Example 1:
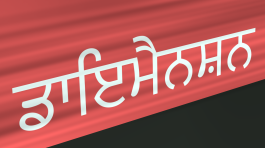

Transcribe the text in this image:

ਡਾਇਮੈਨਸ਼ਨ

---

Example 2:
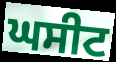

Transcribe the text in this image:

ਘਸੀਟ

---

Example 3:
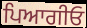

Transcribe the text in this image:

ਪਿਆਗੀਓ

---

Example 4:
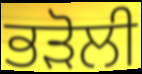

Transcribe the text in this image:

ਭੜੋਲੀ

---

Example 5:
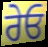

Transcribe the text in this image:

ਰੇਓ